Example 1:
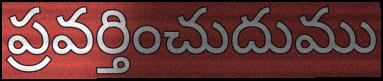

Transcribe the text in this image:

ప్రవర్తించుదుము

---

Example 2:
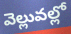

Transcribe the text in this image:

వెల్లువల్లో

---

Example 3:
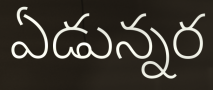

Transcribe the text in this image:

ఏడున్నర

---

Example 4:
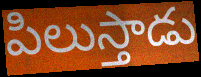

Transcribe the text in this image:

పిలుస్తాడు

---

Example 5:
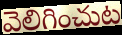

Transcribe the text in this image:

వెలిగించుట